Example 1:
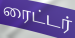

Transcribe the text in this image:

ரைட்டர்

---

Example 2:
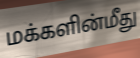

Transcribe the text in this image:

மக்களின்மீது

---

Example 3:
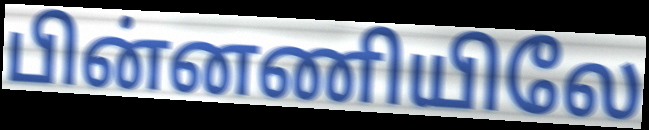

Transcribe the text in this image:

பின்னணியிலே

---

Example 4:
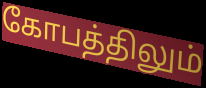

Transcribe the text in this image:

கோபத்திலும்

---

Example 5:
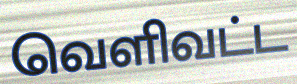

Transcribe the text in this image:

வெளிவட்ட